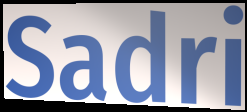
Sadri